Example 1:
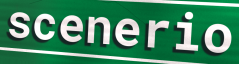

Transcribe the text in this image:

scenerio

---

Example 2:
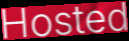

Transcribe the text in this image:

Hosted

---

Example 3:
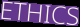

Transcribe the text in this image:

ETHICS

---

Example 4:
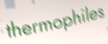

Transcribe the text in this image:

thermophiles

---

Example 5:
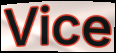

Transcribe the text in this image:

Vice